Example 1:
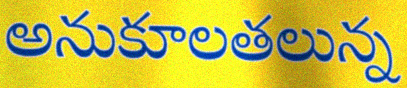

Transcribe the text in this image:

అనుకూలతలున్న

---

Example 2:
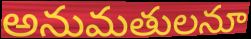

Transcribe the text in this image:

అనుమతులనూ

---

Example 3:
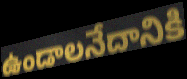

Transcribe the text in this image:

ఉండాలనేదానికి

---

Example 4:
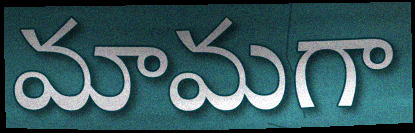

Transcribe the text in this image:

మామగా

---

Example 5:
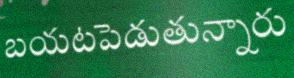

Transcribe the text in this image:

బయటపెడుతున్నారు